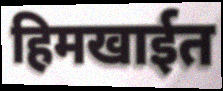
हिमखाईत